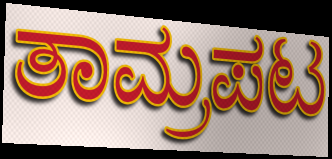
ತಾಮ್ರಪಟ